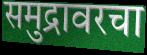
समुद्रावरचा